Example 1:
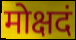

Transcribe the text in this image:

मोक्षदं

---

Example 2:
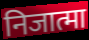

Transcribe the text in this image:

निजात्मा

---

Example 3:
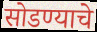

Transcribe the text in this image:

सोडण्याचे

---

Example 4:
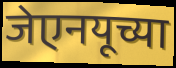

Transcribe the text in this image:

जेएनयूच्या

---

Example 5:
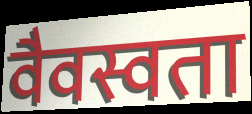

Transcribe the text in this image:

वैवस्वता